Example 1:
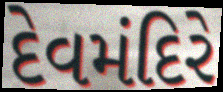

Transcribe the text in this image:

દેવમંદિરે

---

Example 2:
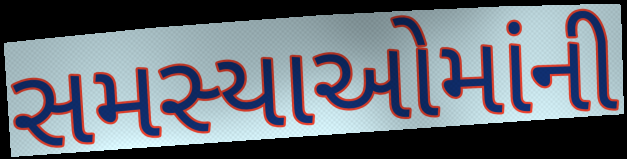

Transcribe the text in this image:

સમસ્યાઓમાંની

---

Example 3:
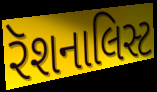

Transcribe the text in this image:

રૅશનાલિસ્ટ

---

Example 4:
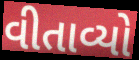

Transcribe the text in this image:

વીતાવ્યો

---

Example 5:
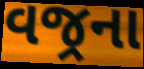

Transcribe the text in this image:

વજ્રના